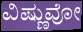
ವಿಷ್ಣುವೋ